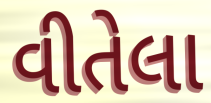
વીતેલા